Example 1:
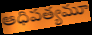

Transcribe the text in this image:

ఆధిపత్యమూ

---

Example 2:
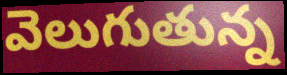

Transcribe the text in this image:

వెలుగుతున్న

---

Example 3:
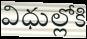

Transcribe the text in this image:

విధుల్లోకి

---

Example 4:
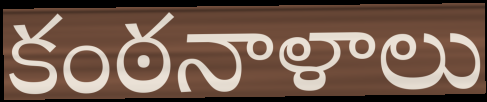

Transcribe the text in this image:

కంఠనాళాలు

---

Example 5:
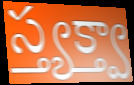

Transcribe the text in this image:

స్త్యక్త్వా